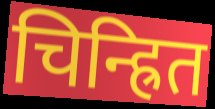
चिन्ह्रित